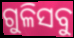
ଗୁଳିସବୁ